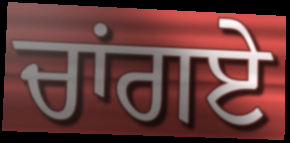
ਚਾਂਗਏ